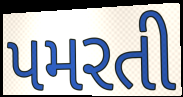
પમરતી